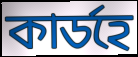
কাৰ্ডহে